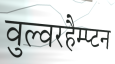
वुल्वरहैम्प्टन